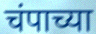
चंपाच्या